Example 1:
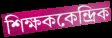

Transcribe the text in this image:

শিক্ষককেন্দ্রিক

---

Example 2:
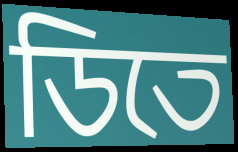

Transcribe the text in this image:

ডিতে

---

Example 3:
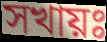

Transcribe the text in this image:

সখায়ঃ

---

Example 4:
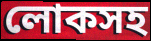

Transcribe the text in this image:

লোকসহ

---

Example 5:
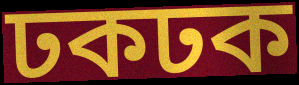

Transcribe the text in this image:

ঢকঢক